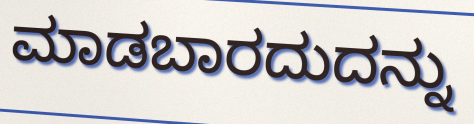
ಮಾಡಬಾರದುದನ್ನು